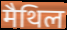
मैथिल